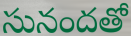
సునందతో